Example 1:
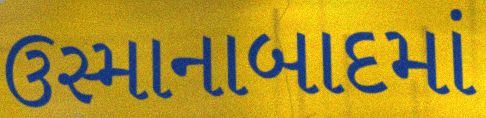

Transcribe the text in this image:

ઉસ્માનાબાદમાં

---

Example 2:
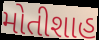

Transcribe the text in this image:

મોતીશાહ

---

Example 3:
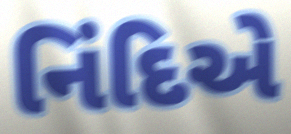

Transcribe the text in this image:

નિંદિએ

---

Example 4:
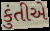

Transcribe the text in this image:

કુંતીએ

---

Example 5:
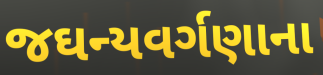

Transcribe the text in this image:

જઘન્યવર્ગણાના